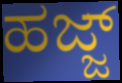
ಹಜ್ಜ್